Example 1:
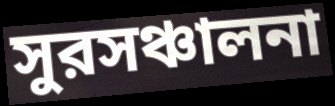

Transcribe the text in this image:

সুরসঞ্চালনা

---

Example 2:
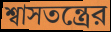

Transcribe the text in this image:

শ্বাসতন্ত্রের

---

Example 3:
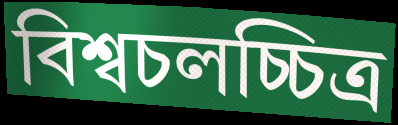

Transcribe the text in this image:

বিশ্বচলচ্চিত্র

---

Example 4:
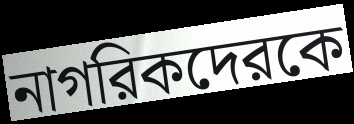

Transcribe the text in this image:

নাগরিকদেরকে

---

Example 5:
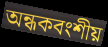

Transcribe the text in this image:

অন্ধকবংশীয়